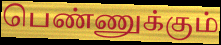
பெண்ணுக்கும்